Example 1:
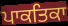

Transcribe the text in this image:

ਪਾਕਤਿਕਾ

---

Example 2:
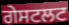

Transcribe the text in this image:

ਗੇਸਟਲਟ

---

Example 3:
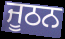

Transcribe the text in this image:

ਜੂਠਨ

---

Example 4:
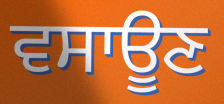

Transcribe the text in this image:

ਵਸਾਊਣ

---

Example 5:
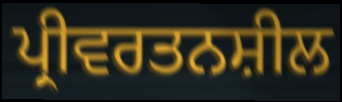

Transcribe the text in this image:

ਪ੍ਰੀਵਰਤਨਸ਼ੀਲ